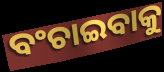
ବଂଚାଇବାକୁ